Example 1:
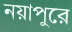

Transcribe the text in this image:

নয়াপুরে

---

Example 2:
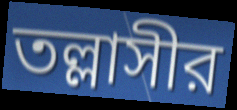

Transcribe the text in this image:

তল্লাসীর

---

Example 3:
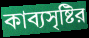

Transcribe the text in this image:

কাব্যসৃষ্টির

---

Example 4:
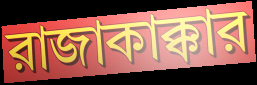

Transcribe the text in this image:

রাজাকাক্কার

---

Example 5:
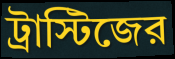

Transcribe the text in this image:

ট্রাস্টিজের